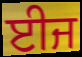
ਈਜ